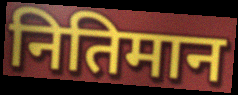
नितिमान